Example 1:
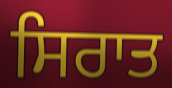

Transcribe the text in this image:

ਸਿਰਾਤ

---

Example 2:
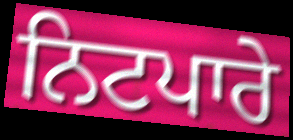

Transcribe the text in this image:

ਨਿਟਪਾਰੇ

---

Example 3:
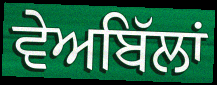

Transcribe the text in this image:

ਵੇਅਬਿੱਲਾਂ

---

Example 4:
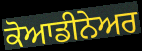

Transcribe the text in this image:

ਕੋਆਡੀਨੇਅਰ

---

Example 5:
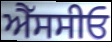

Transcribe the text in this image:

ਐੱਸਸੀਓ